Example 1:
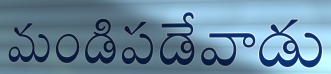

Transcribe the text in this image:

మండిపడేవాడు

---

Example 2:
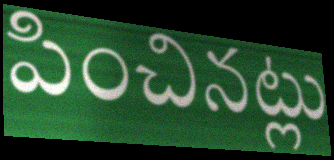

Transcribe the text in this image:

పించినట్లు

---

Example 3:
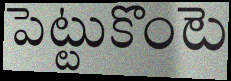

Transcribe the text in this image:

పెట్టుకొంటె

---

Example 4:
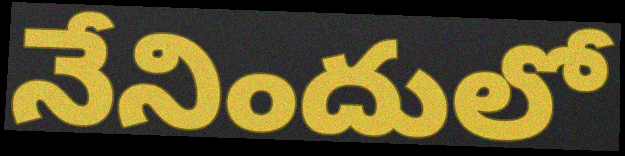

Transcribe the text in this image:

నేనిందులో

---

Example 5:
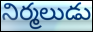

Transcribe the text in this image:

నిర్మలుడు